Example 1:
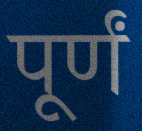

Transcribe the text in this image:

पूर्णं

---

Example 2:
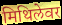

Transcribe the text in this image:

मिथिलेवर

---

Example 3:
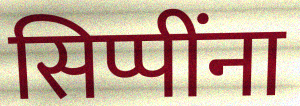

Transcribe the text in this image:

सिप्पींना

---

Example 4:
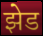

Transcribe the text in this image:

झेड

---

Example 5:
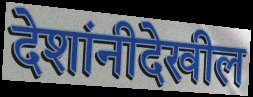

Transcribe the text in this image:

देशांनीदेखील